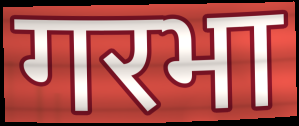
गरभा